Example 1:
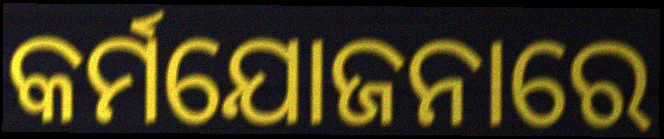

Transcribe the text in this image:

କର୍ମଯୋଜନାରେ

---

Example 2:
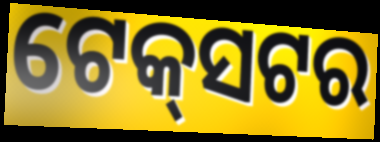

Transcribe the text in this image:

ଟେକ୍‌ସଟର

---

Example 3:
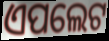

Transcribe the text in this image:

ଏପଲେଟ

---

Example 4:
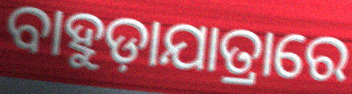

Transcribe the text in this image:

ବାହୁଡ଼ାଯାତ୍ରାରେ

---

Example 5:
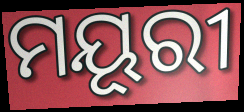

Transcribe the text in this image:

ମୟୂରୀ